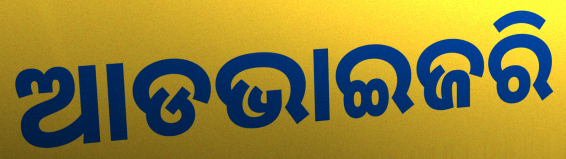
ଆଡଭାଇଜରି